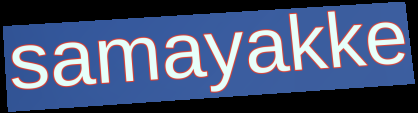
samayakke